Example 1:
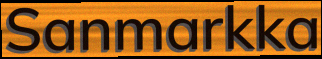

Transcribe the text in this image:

Sanmarkka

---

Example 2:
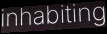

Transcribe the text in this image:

inhabiting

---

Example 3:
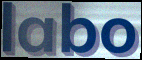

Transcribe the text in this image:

labo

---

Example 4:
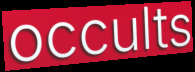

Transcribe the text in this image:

occults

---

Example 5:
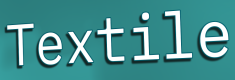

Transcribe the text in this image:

Textile